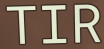
TIR